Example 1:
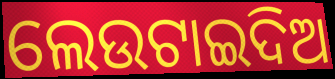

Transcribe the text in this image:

ଲେଉଟାଇଦିଅ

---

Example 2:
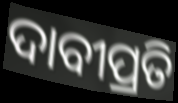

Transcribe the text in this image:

ଦାବୀପ୍ରତି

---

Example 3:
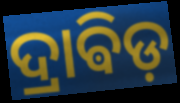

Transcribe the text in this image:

ଦ୍ରାଵିଡ଼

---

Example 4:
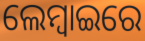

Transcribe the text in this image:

ଲେମ୍ବାଇରେ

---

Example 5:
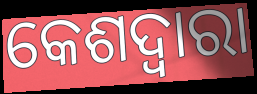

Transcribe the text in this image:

କେଶଦ୍ବାରା